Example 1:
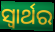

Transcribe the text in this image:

ସ୍ଵାର୍ଥର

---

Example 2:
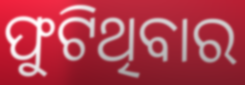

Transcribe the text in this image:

ଫୁଟିଥିବାର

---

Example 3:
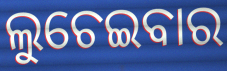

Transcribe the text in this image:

ଲୁଚେଇବାର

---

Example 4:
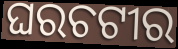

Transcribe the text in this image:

ଘରଚଟୀର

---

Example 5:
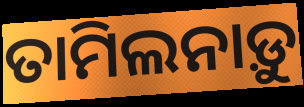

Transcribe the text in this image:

ତାମିଲନାଡ଼ୁ